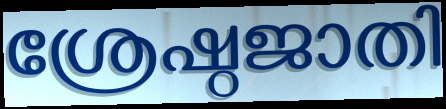
ശ്രേഷ്ഠജാതി